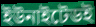
ইউনাইটেডই